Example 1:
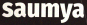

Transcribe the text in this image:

saumya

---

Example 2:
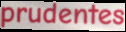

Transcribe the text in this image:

prudentes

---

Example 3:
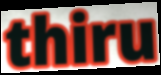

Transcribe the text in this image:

thiru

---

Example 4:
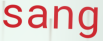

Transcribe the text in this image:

sang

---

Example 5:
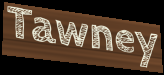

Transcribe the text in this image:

Tawney